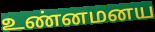
உண்னமனய